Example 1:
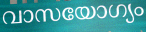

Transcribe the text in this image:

വാസയോഗ്യം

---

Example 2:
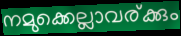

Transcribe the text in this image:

നമുക്കെല്ലാവര്ക്കും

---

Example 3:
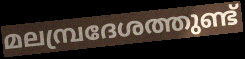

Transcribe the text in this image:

മലമ്പ്രദേശത്തുണ്ട്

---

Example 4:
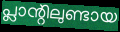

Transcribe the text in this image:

പ്ലാന്റിലുണ്ടായ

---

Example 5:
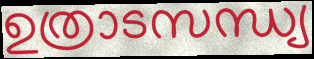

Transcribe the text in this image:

ഉത്രാടസന്ധ്യ